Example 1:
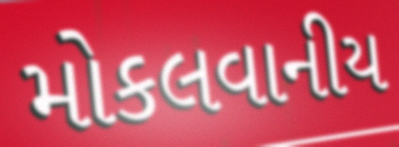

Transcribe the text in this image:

મોકલવાનીય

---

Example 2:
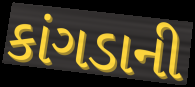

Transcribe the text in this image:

કાંગડાની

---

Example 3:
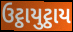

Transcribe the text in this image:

ઉટ્ઠાયુટ્ઠાય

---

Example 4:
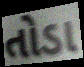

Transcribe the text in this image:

તોડા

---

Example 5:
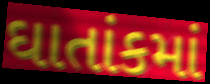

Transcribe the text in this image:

ઘાતાંકમાં